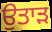
ਉਤਾਡ਼